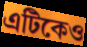
এটিকেও